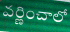
వర్ణించాలో